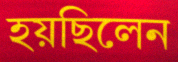
হয়ছিলেন